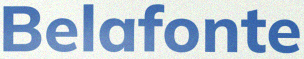
Belafonte